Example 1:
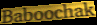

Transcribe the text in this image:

Baboochak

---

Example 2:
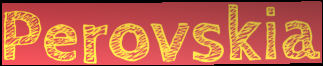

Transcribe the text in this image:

Perovskia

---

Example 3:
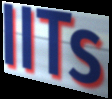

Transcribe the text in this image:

IITs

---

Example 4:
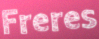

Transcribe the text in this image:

Freres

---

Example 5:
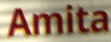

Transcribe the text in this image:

Amita